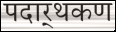
पदार्थकण